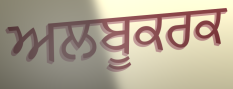
ਅਲਬੂਕਰਕ